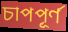
চাপপূর্ণ